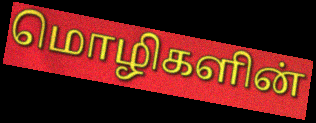
மொழிகளின்